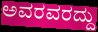
ಅವರವರದ್ದು